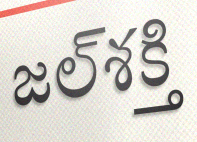
జల్‌శక్తి